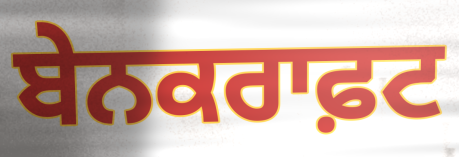
ਬੇਨਕਰਾਫ਼ਟ